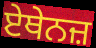
ਏਥੇਨਜ਼